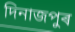
দিনাজপুৰ